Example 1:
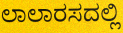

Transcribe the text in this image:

ಲಾಲಾರಸದಲ್ಲಿ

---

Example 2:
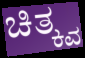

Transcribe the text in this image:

ಚಿತ್ಕ್ವ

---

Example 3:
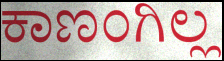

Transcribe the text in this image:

ಕಾಣಂಗಿಲ್ಲ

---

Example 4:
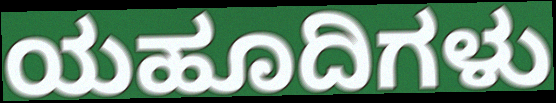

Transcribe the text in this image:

ಯಹೂದಿಗಳು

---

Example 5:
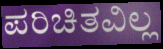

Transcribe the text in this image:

ಪರಿಚಿತವಿಲ್ಲ